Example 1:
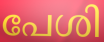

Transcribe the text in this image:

പേശി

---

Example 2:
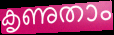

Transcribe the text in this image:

കൃണുതാം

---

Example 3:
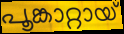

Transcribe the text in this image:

പൂങ്കാറ്റായ്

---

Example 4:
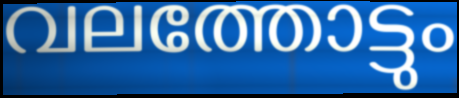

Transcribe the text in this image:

വലത്തോട്ടും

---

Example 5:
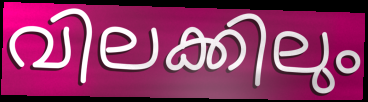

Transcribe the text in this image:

വിലക്കിലും